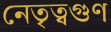
নেতৃত্বগুণ